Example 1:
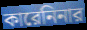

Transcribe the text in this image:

কারেনিনার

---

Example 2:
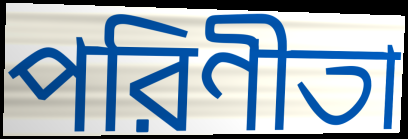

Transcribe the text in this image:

পরিণীতা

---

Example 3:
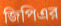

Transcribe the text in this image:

জিপিএর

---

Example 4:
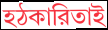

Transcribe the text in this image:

হঠকারিতাই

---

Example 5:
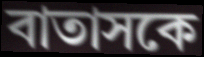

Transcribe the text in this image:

বাতাসকে